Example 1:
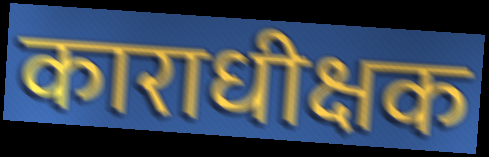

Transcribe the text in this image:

काराधीक्षक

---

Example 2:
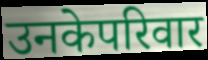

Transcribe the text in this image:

उनकेपरिवार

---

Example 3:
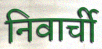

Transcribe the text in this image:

निवार्ची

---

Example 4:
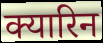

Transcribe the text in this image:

क्यारिन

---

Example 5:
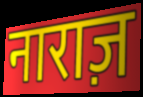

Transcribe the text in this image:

नाराज़